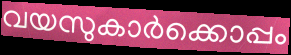
വയസുകാർക്കൊപ്പം